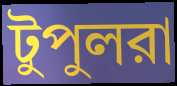
টুপুলরা